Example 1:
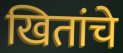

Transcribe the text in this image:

खितांचे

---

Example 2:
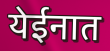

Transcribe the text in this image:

येईनात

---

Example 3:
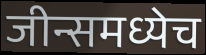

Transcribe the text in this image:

जीन्समध्येच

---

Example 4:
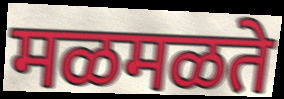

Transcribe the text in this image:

मळमळते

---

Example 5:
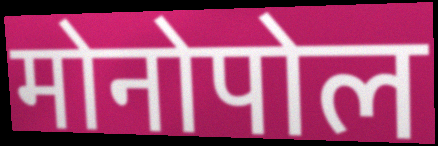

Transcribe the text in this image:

मोनोपोल